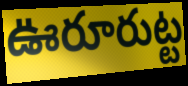
ఊరూరుట్ట